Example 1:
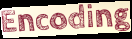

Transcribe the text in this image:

Encoding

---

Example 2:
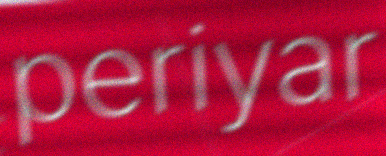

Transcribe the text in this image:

periyar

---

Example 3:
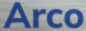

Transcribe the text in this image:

Arco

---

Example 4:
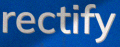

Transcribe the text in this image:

rectify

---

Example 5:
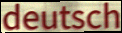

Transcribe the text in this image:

deutsch